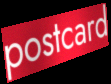
postcard